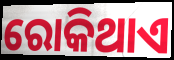
ରୋକିଥାଏ